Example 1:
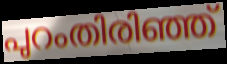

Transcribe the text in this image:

പുറംതിരിഞ്ഞ്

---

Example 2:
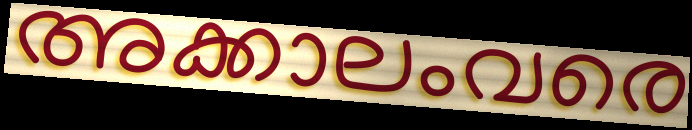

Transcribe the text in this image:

അക്കാലംവരെ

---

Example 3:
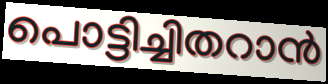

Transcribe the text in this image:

പൊട്ടിച്ചിതറാൻ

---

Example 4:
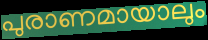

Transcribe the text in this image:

പുരാണമായാലും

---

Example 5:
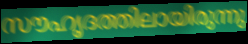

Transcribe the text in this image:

സൗഹൃദത്തിലായിരുന്നു